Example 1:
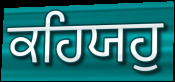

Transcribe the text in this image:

ਕਹਿਯਹੁ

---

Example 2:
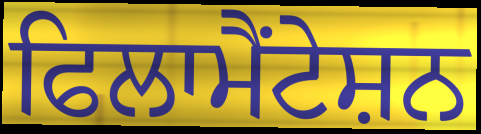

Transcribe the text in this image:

ਫਿਲਾਮੈਂਟੇਸ਼ਨ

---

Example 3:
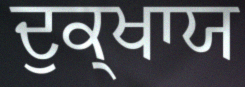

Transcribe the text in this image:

ਦੁਕ੍ਖਾਯ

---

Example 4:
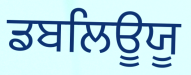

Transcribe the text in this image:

ਡਬਲਿਊਯੂ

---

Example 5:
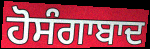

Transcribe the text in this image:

ਹੋਸੰਗਾਬਾਦ